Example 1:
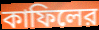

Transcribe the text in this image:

কাফিলের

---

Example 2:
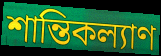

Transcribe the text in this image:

শান্তিকল্যাণ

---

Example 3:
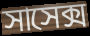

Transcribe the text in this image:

সাসেক্স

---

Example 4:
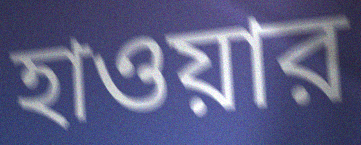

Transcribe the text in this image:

হাওয়ার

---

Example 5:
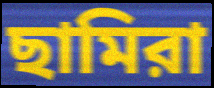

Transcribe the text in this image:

ছামিরা